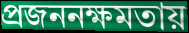
প্রজননক্ষমতায়